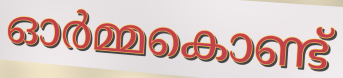
ഓർമ്മകൊണ്ട്